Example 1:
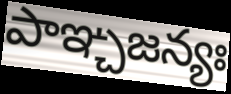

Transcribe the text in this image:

పాఞ్చజన్యః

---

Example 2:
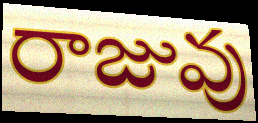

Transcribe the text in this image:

రాజువు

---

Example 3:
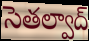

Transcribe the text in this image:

సెతల్వాద్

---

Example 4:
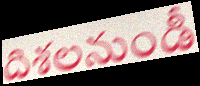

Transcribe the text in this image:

దిశలనుండీ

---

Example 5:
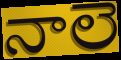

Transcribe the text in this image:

నాలె